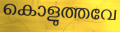
കൊളുത്തവേ